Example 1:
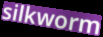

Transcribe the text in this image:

silkworm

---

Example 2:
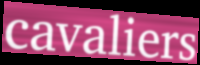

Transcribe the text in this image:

cavaliers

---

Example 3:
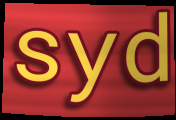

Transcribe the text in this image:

syd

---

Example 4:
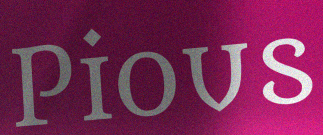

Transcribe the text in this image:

Pious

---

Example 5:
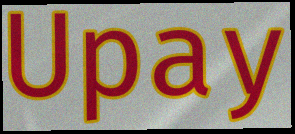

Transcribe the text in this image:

Upay